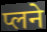
प्लने